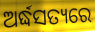
ଅର୍ଦ୍ଧସତ୍ୟରେ